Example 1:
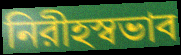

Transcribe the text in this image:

নিরীহস্বভাব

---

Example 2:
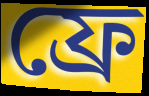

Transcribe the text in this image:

ফ্রে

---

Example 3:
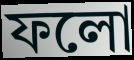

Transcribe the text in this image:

ফলো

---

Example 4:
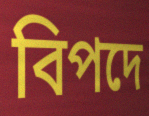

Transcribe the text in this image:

বিপদে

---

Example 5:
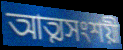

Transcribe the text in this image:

আত্মসংশয়ী